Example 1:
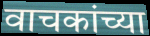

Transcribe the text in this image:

वाचकांच्या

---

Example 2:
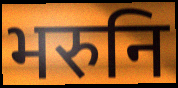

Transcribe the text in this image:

भरुनि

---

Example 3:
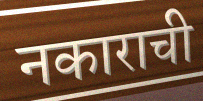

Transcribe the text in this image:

नकाराची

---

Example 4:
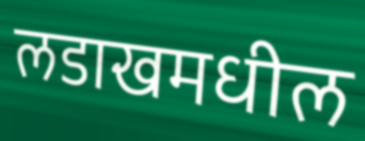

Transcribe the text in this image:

लडाखमधील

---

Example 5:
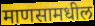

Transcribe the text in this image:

माणसामधील